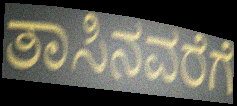
ತಾಸಿನವರೆಗೆ